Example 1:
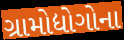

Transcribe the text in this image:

ગ્રામોદ્યોગોના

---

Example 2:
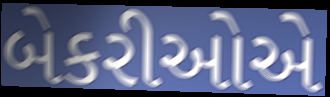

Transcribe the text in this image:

બેકરીઓએ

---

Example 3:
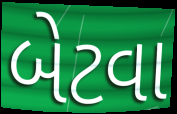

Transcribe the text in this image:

બેટવા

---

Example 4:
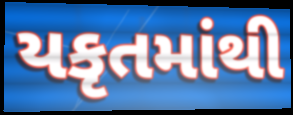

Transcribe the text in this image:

યકૃતમાંથી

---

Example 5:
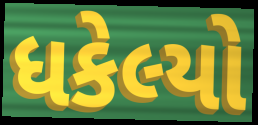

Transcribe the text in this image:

ધકેલ્યો